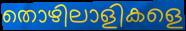
തൊഴിലാളികളെ